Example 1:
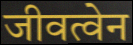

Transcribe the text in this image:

जीवत्वेन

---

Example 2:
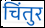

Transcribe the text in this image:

चिंतुर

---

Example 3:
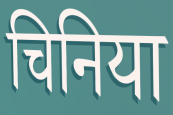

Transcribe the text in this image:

चिनिया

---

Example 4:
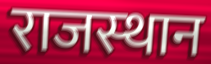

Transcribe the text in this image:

राजस्‍थान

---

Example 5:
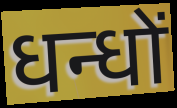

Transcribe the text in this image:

धन्धों